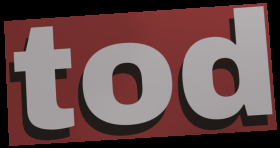
tod